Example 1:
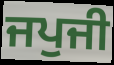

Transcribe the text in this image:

ਜਪੁਜੀ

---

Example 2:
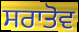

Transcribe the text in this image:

ਸਰਾਤੋਵ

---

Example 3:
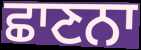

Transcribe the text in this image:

ਛਾਣਨਾ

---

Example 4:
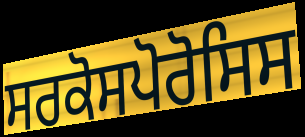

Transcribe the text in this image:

ਸਰਕੋਸਪੋਰੋਸਿਸ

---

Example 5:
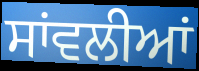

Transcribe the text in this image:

ਸਾਂਵਲੀਆਂ